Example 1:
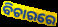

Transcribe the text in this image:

ବିଚାରରେ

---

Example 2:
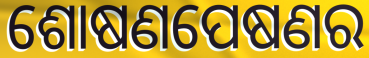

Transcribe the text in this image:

ଶୋଷଣପେଷଣର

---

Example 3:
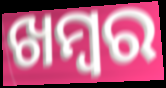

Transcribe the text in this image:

ଖମ୍ବର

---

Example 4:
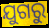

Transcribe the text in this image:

ଯୁଗରୁ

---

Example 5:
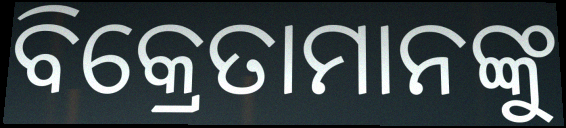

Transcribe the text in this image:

ବିକ୍ରେତାମାନଙ୍କୁ